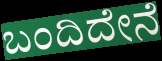
ಬಂದಿದೇನೆ